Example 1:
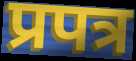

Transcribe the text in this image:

प्रपत्र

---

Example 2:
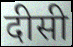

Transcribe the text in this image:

दीसी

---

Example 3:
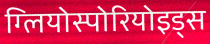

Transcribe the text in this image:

ग्लियोस्पोरियोइड्स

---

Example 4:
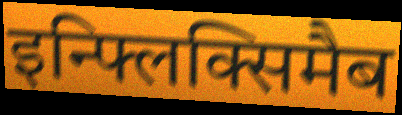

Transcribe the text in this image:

इन्फ्लिक्सिमैब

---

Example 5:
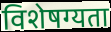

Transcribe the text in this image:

विशेषग्यता